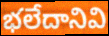
భలేదానివి